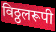
विठ्ठलरूपी